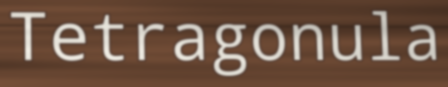
Tetragonula